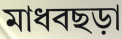
মাধবছড়া